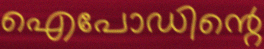
ഐപോഡിന്റെ